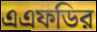
এএফডির